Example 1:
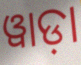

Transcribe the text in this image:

ୱାଡ଼ା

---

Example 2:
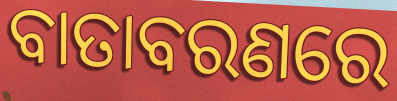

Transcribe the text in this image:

ବାତାବରଣରେ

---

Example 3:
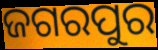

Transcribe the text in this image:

ଜଗରପୁର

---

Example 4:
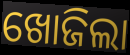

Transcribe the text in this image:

ଖୋଜିଲା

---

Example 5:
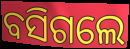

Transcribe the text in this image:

ବସିଗଲେ